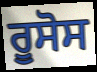
ਰੂਸੋਸ